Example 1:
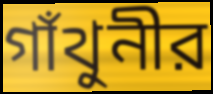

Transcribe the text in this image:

গাঁথুনীর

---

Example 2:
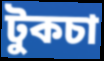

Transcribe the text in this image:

টুকচা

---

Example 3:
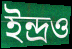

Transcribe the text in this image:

ইন্দ্রও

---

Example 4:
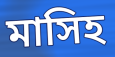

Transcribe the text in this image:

মাসিহ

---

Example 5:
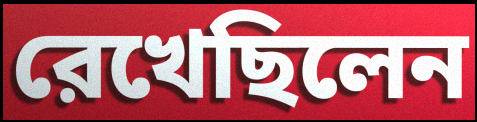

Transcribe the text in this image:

রেখেছিলেন